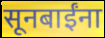
सूनबाईंना